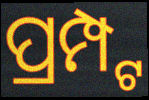
ପ୍ରମ୍ପ୍ଟ